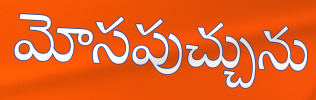
మోసపుచ్చును